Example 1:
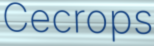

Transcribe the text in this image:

Cecrops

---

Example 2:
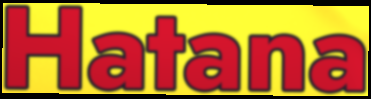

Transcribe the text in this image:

Hatana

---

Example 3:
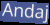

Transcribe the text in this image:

Andaj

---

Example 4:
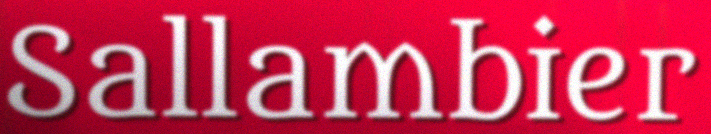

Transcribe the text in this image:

Sallambier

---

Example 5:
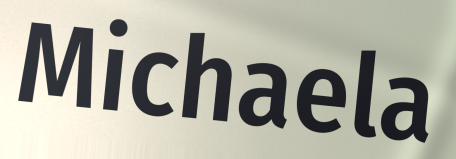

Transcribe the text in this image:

Michaela